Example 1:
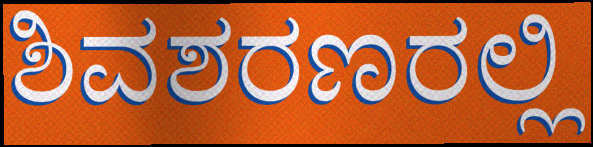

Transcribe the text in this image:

ಶಿವಶರಣರಲ್ಲಿ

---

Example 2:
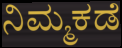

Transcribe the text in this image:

ನಿಮ್ಮಕಡೆ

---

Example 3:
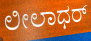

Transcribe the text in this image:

ಲೀಲಾಧರ್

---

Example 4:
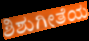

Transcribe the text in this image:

ಶಿಶುಗೀತೆಯ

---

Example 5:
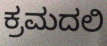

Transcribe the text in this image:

ಕ್ರಮದಲಿ